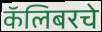
कॅलिबरचे